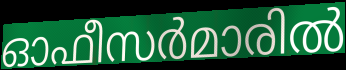
ഓഫീസർമാരിൽ